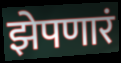
झेपणारं